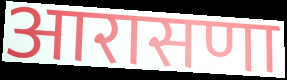
आरासणा